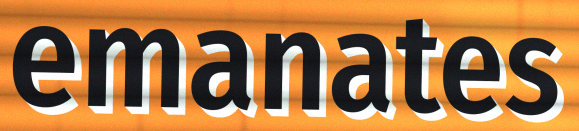
emanates